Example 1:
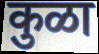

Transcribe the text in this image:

कुळा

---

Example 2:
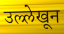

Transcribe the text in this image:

उल्लेखून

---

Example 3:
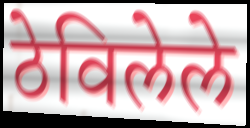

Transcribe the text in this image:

ठेविलेले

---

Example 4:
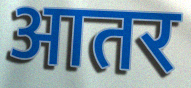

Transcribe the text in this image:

आतर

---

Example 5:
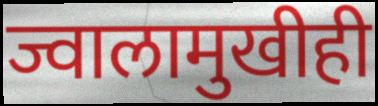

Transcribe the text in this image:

ज्वालामुखीही